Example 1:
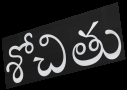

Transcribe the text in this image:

శోచితు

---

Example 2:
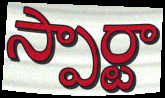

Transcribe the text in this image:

స్పార్టా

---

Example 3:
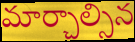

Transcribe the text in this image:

మార్చాల్సిన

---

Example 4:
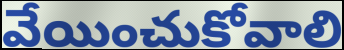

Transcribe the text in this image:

వేయించుకోవాలి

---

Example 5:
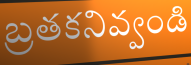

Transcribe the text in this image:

బ్రతకనివ్వండి